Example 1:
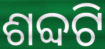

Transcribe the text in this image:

ଶବ୍ଦଟି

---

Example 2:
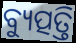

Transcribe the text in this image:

ବ୍ୟୁତ୍ପତ୍ତି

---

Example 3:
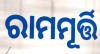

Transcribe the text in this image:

ରାମମୂର୍ତ୍ତି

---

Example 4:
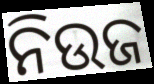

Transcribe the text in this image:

ନିଉଜ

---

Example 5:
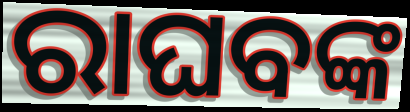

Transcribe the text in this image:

ରାଘବଙ୍କ